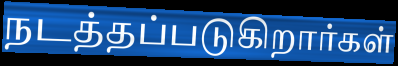
நடத்தப்படுகிறார்கள்